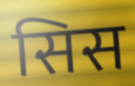
सिस